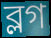
ব্লগ